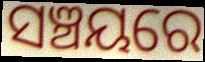
ସଞ୍ଚୟରେ